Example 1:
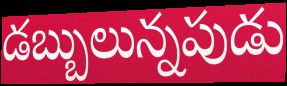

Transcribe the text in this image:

డబ్బులున్నపుడు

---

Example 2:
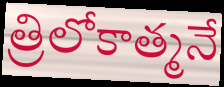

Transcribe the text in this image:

త్రిలోకాత్మనే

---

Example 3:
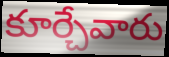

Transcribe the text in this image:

కూర్చేవారు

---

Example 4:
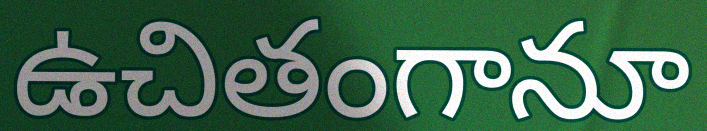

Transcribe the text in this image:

ఉచితంగానూ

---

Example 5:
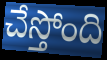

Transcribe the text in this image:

చేస్తోంది